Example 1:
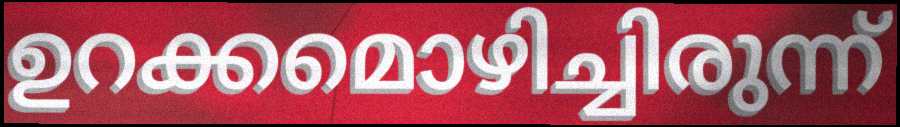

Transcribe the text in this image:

ഉറക്കമൊഴിച്ചിരുന്ന്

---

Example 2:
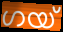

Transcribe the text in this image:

ഗയ്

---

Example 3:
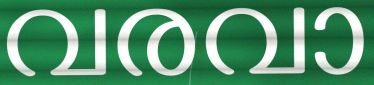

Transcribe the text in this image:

വരവാ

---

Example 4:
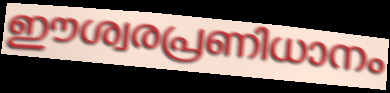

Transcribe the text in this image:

ഈശ്വരപ്രണിധാനം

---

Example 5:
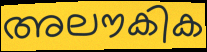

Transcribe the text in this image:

അലൗകിക